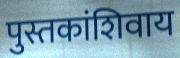
पुस्तकांशिवाय